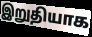
இறுதியாக